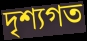
দৃশ্যগত